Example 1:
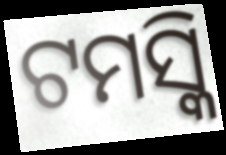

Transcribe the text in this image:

ଟମସ୍କି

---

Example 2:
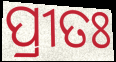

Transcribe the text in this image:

ପ୍ରୀତଃ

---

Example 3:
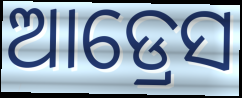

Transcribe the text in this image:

ଆଡ୍ରେସ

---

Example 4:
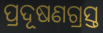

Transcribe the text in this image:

ପ୍ରଦୂଷଣଗ୍ରସ୍ତ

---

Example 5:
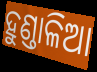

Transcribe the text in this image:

ହୁଣ୍ଡାଳିଆ